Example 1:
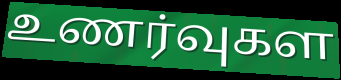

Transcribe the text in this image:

உணர்வுகள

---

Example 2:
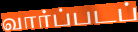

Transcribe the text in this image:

வார்ப்படப்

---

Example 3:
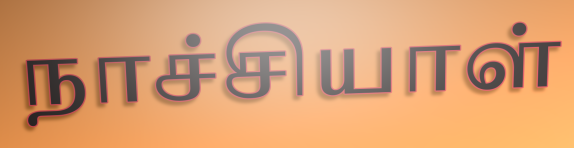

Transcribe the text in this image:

நாச்சியாள்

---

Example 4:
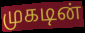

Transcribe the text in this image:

முகடின்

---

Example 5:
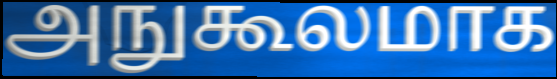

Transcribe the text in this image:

அநுகூலமாக